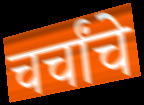
चर्चांचे